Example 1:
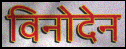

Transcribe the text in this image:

विनोदेन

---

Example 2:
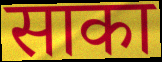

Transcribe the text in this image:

साका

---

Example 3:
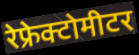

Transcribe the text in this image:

रेफ्रेक्टोमीटर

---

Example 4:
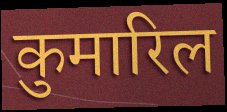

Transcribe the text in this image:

कुमारिल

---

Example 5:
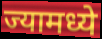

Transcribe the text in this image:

ज्यामध्ये